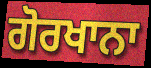
ਗੋਰਖਾਨਾ